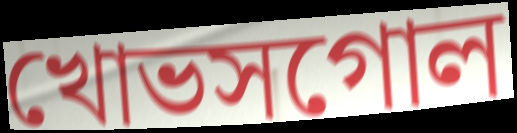
খোভসগোল